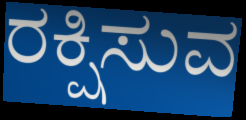
ರಕ್ಷಿಸುವ